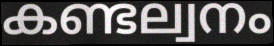
കണ്ടല്വനം